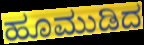
ಹೂಮುಡಿದ